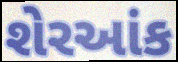
શેરઆંક